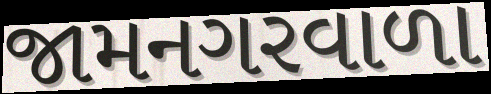
જામનગરવાળા